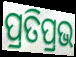
ପ୍ରତିପ୍ରଭ